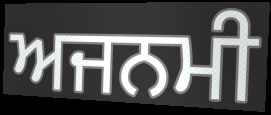
ਅਜਨਮੀ